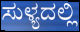
ಸುಳ್ಯದಲ್ಲಿ